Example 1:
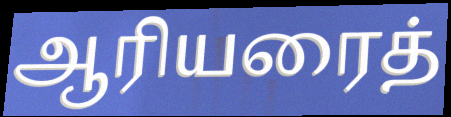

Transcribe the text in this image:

ஆரியரைத்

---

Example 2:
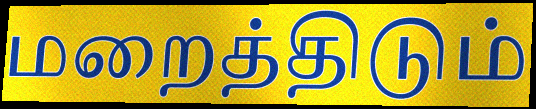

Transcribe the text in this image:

மறைத்திடும்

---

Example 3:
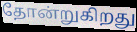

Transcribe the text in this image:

தோன்றுகிறது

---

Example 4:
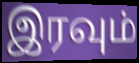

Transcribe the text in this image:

இரவும்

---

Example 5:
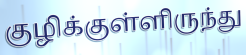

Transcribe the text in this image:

குழிக்குள்ளிருந்து